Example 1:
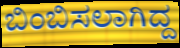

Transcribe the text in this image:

ಬಿಂಬಿಸಲಾಗಿದ್ದ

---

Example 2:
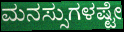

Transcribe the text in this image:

ಮನಸ್ಸುಗಳಷ್ಟೇ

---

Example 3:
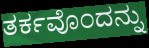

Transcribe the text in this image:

ತರ್ಕವೊಂದನ್ನು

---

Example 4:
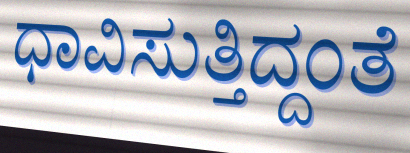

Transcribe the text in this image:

ಧಾವಿಸುತ್ತಿದ್ದಂತೆ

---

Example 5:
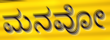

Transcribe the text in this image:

ಮನವೋ